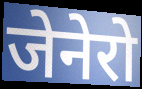
जेनेरो